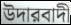
উদারবাদী